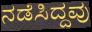
ನಡೆಸಿದ್ದವು